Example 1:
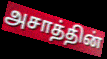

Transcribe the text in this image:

அசாத்தின்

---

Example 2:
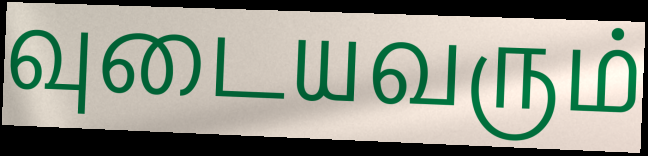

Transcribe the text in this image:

வுடையவரும்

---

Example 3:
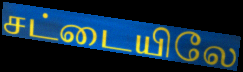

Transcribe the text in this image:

சட்டையிலே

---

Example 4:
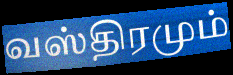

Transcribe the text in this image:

வஸ்திரமும்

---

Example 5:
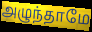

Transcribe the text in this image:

அழுந்தாமே